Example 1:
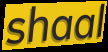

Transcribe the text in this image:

shaal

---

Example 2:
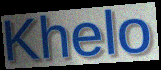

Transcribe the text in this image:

Khelo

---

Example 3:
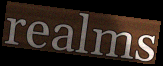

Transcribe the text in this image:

realms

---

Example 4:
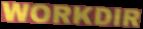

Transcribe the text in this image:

WORKDIR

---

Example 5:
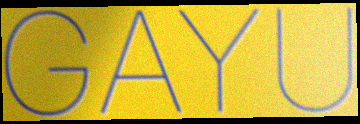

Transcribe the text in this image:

GAYU